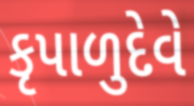
કૃપાળુદેવે